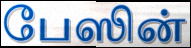
பேஸின்